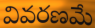
వివరణమే